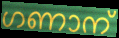
ഗണാന്